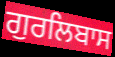
ਗੁਰਲਿਬਾਸ